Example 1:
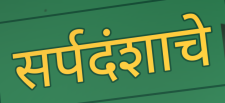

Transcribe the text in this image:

सर्पदंशाचे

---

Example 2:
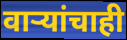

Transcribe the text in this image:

वाऱ्यांचाही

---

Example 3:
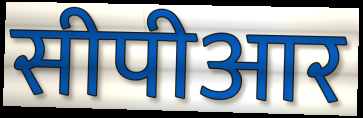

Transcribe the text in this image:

सीपीआर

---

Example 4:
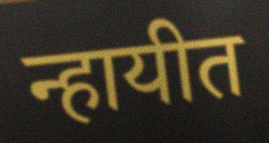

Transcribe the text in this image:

न्हायीत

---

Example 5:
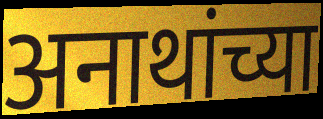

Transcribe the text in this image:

अनाथांच्या